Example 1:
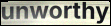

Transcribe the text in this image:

unworthy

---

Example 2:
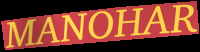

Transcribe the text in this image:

MANOHAR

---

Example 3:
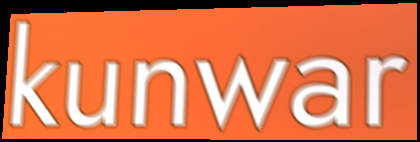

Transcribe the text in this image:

kunwar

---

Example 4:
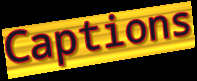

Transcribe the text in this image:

Captions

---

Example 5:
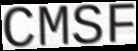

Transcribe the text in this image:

CMSF